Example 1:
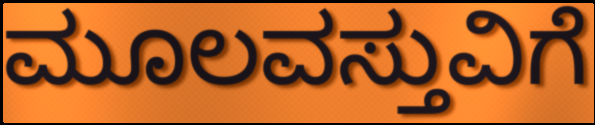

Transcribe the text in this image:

ಮೂಲವಸ್ತುವಿಗೆ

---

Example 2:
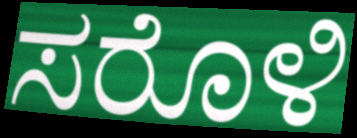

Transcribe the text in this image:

ಸರೊಳಿ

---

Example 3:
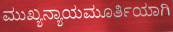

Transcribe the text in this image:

ಮುಖ್ಯನ್ಯಾಯಮೂರ್ತಿಯಾಗಿ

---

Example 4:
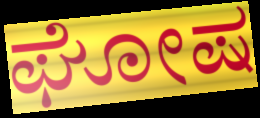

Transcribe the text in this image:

ಘೋಷ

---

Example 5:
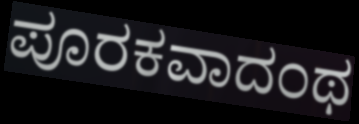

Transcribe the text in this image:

ಪೂರಕವಾದಂಥ